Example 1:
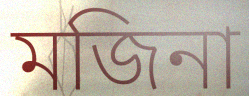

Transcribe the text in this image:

মজিনা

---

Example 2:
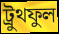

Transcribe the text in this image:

ট্রুথফুল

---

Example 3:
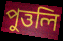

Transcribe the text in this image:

পুত্তলি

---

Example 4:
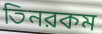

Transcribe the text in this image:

তিনরকম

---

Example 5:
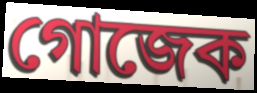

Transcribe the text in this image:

গোজেক